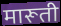
मारूती